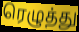
ரெழுத்து